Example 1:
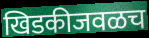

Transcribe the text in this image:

खिडकीजवळच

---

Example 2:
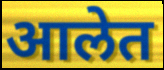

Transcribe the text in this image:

आलेत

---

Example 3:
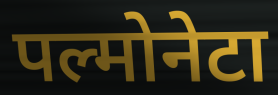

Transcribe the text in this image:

पल्मोनेटा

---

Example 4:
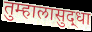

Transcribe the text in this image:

तुम्हालासुद्धा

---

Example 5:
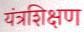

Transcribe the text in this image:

यंत्रशिक्षण